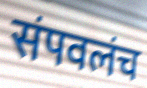
संपवलंच